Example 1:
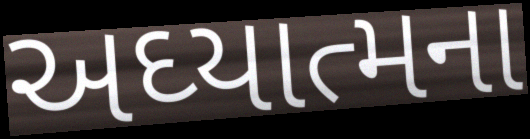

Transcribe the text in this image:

અઘ્યાત્મના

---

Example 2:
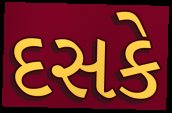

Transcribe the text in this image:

દસકે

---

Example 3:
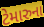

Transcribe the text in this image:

ટેમારુના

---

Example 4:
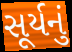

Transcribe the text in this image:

સૂર્યનું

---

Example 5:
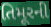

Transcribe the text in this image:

તિમૂરની